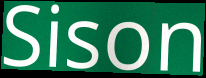
Sison